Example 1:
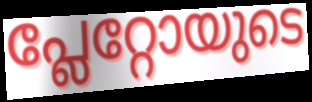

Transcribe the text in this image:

പ്ലേറ്റോയുടെ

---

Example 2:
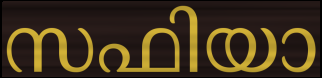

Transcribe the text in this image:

സഫിയാ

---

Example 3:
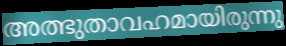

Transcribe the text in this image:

അത്ഭുതാവഹമായിരുന്നു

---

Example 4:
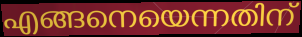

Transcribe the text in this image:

എങ്ങനെയെന്നതിന്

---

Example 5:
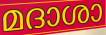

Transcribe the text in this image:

മദാശാ